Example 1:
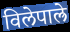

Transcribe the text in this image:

विलेपाल्रे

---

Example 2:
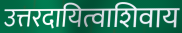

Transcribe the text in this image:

उत्तरदायित्वाशिवाय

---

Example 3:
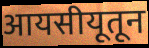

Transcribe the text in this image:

आयसीयूतून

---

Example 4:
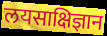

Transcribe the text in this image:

लयसाक्षिज्ञान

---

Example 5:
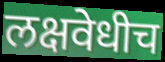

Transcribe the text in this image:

लक्षवेधीच